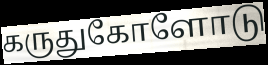
கருதுகோளோடு